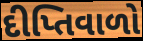
દીપ્તિવાળો